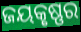
ଜୟକୃଷ୍ଣର